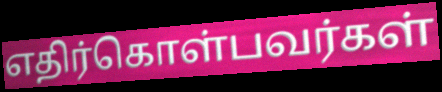
எதிர்கொள்பவர்கள்